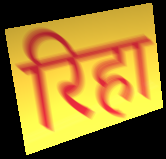
रिहा